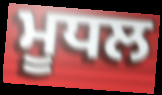
ਮੂਧਲ